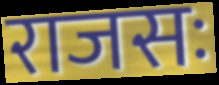
राजसः